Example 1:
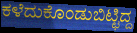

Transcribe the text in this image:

ಕಳೆದುಕೊಂಡುಬಿಟ್ಟಿದ್ದ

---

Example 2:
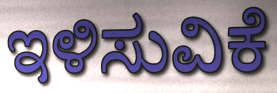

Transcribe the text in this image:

ಇಳಿಸುವಿಕೆ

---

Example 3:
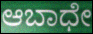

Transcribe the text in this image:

ಆಬಾಧೇ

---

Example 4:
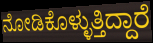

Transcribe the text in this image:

ನೋಡಿಕೊಳ್ಳುತ್ತಿದ್ದಾರೆ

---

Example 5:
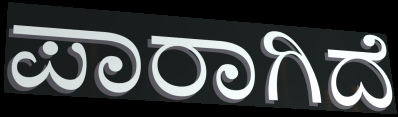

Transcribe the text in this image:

ಪಾರಾಗಿದೆ